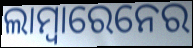
ଲାମ୍ବାରେନେର